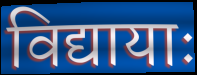
विद्यायाः